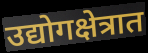
उद्योगक्षेत्रात